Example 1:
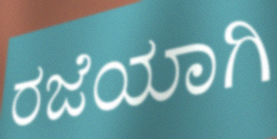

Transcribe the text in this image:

ರಜೆಯಾಗಿ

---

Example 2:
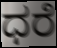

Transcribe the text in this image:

ಧರೆ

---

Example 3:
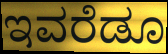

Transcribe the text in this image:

ಇವರೆಡೂ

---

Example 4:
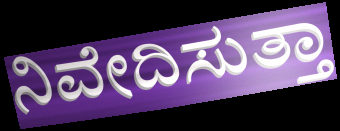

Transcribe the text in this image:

ನಿವೇದಿಸುತ್ತಾ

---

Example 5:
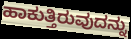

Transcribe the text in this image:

ಹಾಕುತ್ತಿರುವುದನ್ನು